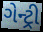
ગેન્ટ્રી